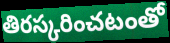
తిరస్కరించటంతో